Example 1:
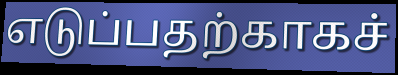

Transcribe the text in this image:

எடுப்பதற்காகச்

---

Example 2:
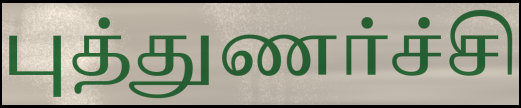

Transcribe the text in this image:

புத்துணர்ச்சி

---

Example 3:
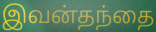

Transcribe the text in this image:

இவன்தந்தை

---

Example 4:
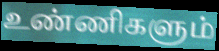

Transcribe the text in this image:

உண்ணிகளும்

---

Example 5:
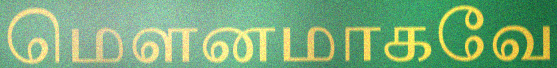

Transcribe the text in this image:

மெளனமாகவே